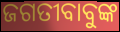
ଜଗତୀବାବୁଙ୍କ